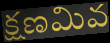
క్షణమివ